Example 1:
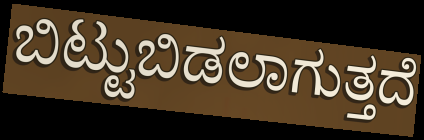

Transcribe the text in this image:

ಬಿಟ್ಟುಬಿಡಲಾಗುತ್ತದೆ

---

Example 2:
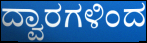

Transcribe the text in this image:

ದ್ವಾರಗಳಿಂದ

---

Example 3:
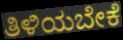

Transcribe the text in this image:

ತಿಳಿಯಬೇಕೆ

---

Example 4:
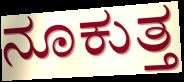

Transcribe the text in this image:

ನೂಕುತ್ತ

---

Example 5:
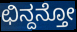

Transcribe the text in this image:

ಛಿನ್ದನ್ತೋ